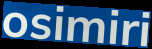
osimiri